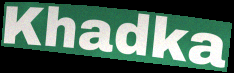
Khadka